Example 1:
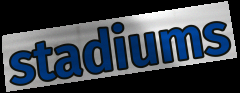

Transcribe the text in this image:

stadiums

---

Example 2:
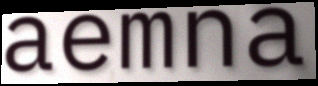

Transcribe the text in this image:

aemna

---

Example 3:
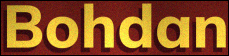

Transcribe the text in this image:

Bohdan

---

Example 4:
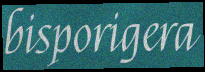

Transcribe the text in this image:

bisporigera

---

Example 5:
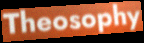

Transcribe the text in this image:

Theosophy